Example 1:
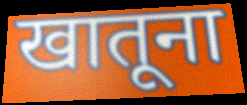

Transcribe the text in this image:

खातूना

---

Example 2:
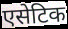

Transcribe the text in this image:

एसेटिक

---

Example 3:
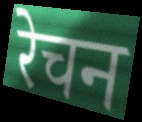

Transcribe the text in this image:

रेचन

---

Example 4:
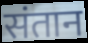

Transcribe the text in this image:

संतान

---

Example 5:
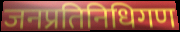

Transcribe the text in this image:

जनप्रतिनिधिगण